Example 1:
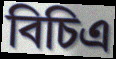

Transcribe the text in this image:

বিচিএ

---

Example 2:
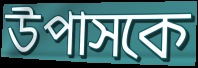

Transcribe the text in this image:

উপাসকে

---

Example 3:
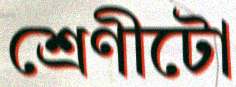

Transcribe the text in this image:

শ্ৰেণীটো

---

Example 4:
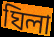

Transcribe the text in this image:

ঘিলা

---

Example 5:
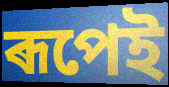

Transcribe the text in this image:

ৰূপেই